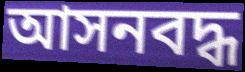
আসনবদ্ধ